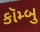
કૉમ્બુ